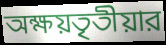
অক্ষয়তৃতীয়ার